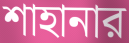
শাহানার